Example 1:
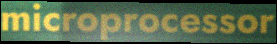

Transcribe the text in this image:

microprocessor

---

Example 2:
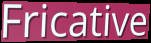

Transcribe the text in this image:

Fricative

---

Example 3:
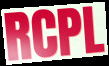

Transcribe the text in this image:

RCPL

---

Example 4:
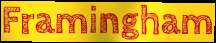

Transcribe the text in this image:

Framingham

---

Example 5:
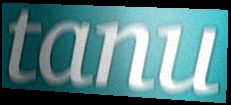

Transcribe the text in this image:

tanu